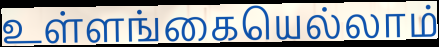
உள்ளங்கையெல்லாம்